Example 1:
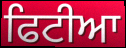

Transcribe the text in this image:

ਫਿਟੀਆ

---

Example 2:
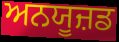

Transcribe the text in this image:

ਅਨਯੂਜ਼ਡ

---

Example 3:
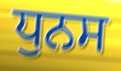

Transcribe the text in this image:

ਧੁਨਸ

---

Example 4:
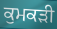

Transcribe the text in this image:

ਕੁਮਕੜੀ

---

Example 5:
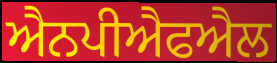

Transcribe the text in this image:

ਐਨਪੀਐਫਐਲ